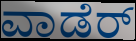
ವಾಡೆರ್